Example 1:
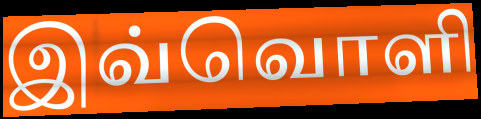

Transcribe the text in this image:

இவ்வொளி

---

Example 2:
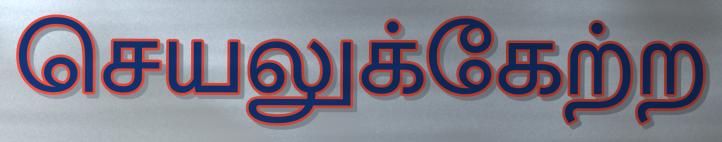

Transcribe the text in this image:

செயலுக்கேற்ற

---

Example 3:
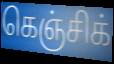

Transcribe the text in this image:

கெஞ்சிக்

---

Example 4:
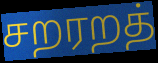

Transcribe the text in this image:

சறரறத்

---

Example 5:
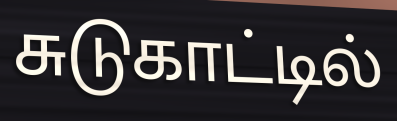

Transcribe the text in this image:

சுடுகாட்டில்